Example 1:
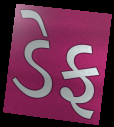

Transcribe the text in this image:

ડેફ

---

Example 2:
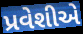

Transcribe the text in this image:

પ્રવેશીએ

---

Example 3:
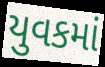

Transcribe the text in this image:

યુવકમાં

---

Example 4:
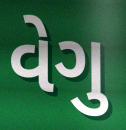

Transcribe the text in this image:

વેગુ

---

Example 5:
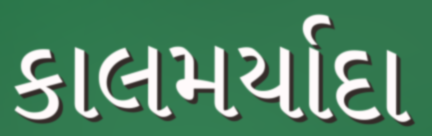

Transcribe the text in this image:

કાલમર્યાદા